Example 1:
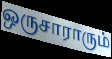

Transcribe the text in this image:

ஒருசாராரும்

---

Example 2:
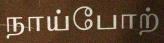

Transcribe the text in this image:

நாய்போற்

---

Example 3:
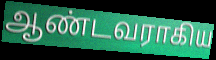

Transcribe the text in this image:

ஆண்டவராகிய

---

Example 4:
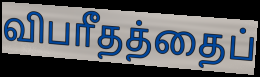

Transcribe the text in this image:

விபரீதத்தைப்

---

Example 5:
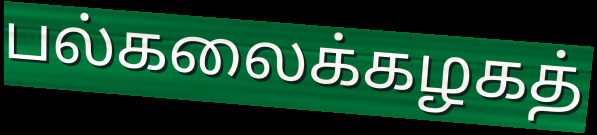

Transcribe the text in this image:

பல்கலைக்கழகத்